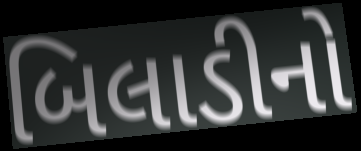
બિલાડીનો